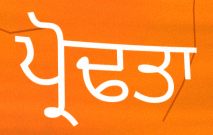
ਪ੍ਰੋਢਤਾ